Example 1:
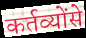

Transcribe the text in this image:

कर्तव्योंसे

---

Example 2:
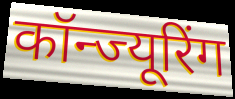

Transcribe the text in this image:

कॉन्ज्यूरिंग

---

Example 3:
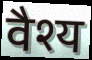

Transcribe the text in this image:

वैश्य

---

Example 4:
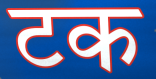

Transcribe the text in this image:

टक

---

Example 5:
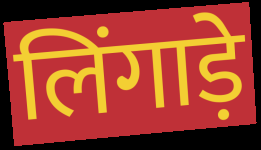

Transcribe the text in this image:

लिंगाड़े